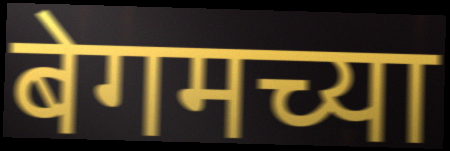
बेगमच्या